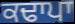
ਕਢਾਪਾ